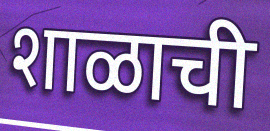
शाळाची